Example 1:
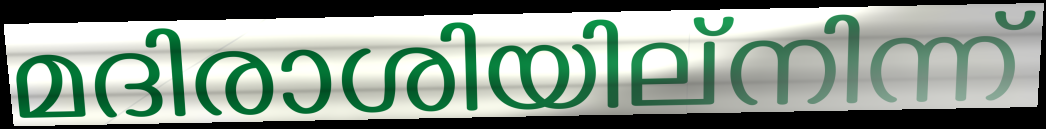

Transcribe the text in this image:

മദിരാശിയില്നിന്ന്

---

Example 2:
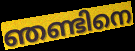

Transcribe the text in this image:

ഞണ്ടിനെ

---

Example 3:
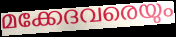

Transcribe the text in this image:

മക്കേദവരെയും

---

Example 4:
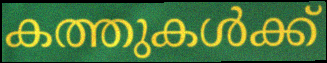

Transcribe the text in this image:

കത്തുകൾക്ക്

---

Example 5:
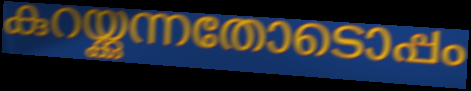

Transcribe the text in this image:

കുറയ്ക്കുന്നതോടൊപ്പം